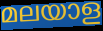
മലയാള